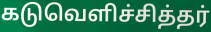
கடுவெளிச்சித்தர்